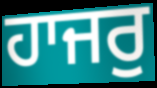
ਹਾਜਰੁ